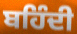
ਬਹਿੰਦੀ